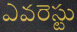
ఎవరెస్టు